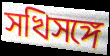
সখিসঙ্গে